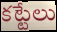
కట్టేలు